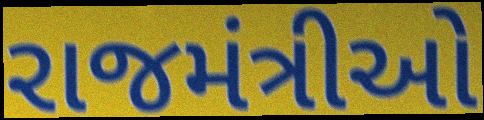
રાજમંત્રીઓ